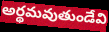
అర్థమవుతుండేవి